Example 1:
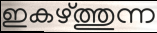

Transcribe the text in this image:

ഇകഴ്ത്തുന്ന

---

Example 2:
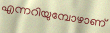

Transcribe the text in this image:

എന്നറിയുമ്പോഴാണ്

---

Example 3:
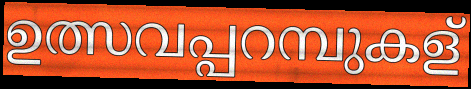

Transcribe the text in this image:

ഉത്സവപ്പറമ്പുകള്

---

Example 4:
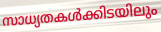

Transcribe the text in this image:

സാധ്യതകൾക്കിടയിലും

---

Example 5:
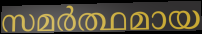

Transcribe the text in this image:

സമർത്ഥമായ